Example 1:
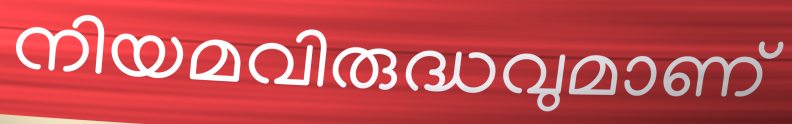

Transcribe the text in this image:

നിയമവിരുദ്ധവുമാണ്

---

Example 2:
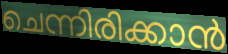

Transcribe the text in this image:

ചെന്നിരിക്കാൻ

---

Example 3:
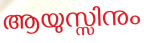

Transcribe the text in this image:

ആയുസ്സിനും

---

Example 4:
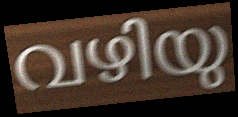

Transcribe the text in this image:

വഴിയു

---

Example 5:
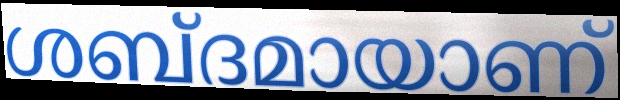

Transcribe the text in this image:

ശബ്ദമായാണ്